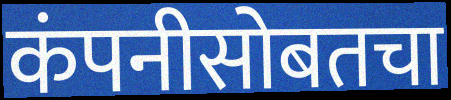
कंपनीसोबतचा